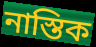
নাস্তিক